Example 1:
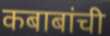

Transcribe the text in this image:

कबाबांची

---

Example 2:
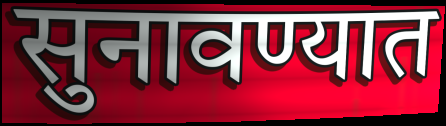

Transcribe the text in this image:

सुनावण्यात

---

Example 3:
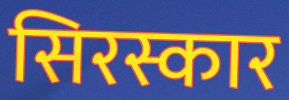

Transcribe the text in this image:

सिरस्कार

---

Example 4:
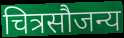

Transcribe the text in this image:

चित्रसौजन्य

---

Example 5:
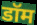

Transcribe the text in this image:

डॉम